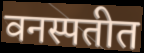
वनस्पतीत